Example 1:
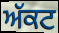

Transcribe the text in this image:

ਅੱਕਟ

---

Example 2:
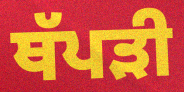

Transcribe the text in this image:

ਥੱਪੜੀ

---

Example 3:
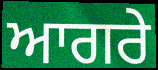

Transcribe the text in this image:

ਆਗਰੇ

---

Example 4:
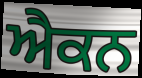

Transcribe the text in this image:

ਐਕਨ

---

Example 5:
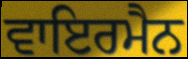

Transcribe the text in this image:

ਵਾਇਰਮੈਨ